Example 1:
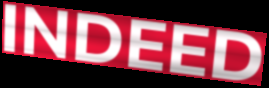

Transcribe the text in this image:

INDEED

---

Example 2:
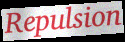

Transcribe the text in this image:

Repulsion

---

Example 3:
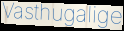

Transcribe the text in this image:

Vasthugalige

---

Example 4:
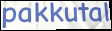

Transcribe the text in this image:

pakkutal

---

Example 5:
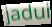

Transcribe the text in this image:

jadui